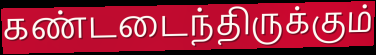
கண்டடைந்திருக்கும்